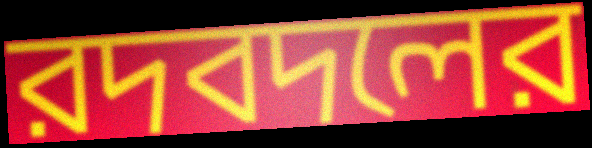
রদবদলের